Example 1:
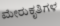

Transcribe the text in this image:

ಮೇರುಕೃತಿಗಳ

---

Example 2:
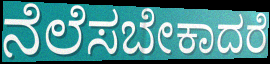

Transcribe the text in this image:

ನೆಲೆಸಬೇಕಾದರೆ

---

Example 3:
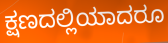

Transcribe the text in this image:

ಕ್ಷಣದಲ್ಲಿಯಾದರೂ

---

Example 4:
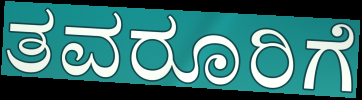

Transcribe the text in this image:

ತವರೂರಿಗೆ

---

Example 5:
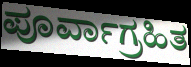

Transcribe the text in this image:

ಪೂರ್ವಾಗ್ರಹಿತ